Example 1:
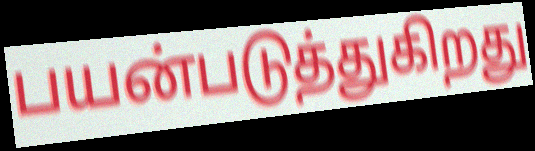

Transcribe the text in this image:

பயன்படுத்துகிறது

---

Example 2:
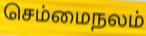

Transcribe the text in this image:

செம்மைநலம்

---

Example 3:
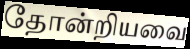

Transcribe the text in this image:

தோன்றியவை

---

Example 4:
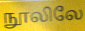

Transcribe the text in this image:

நூலிலே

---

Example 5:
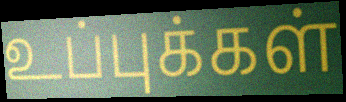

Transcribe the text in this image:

உப்புக்கள்